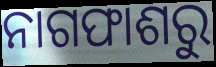
ନାଗଫାଶରୁ